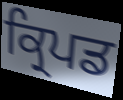
ਕ੍ਰਿਪਡ